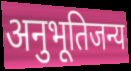
अनुभूतिजन्य